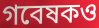
গবেষকও